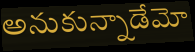
అనుకున్నాడేమో